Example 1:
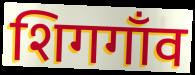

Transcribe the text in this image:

शिगगाँव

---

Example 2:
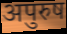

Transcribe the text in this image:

अपुरुष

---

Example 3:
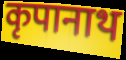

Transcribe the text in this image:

कृपानाथ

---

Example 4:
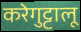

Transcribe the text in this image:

करेगुट्टालू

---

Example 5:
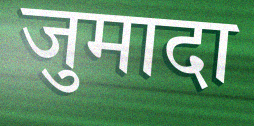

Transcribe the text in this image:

जुमादा